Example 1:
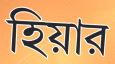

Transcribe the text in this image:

হিয়ার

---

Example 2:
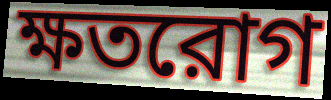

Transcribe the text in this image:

ক্ষতরোগ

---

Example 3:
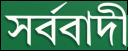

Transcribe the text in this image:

সর্ববাদী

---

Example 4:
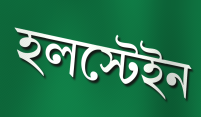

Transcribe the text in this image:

হলস্টেইন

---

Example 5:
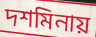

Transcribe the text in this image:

দশমিনায়